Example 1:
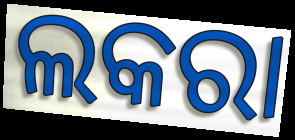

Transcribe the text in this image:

ଲକରା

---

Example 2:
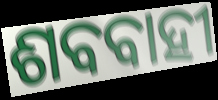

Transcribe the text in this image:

ଶବବାହୀ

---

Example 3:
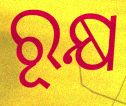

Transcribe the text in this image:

ରୂକ୍ଷ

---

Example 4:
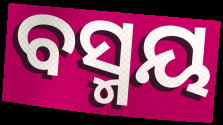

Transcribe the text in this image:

ବସ୍ମୟ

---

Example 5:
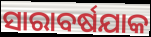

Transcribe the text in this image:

ସାରାବର୍ଷଯାକ